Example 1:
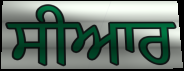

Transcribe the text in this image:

ਸੀਆਰ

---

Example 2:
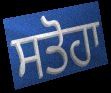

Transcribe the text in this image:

ਸਤੋਹਾ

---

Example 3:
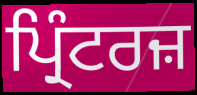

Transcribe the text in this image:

ਪ੍ਰਿੰਟਰਜ਼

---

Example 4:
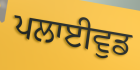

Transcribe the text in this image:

ਪਲਾਈਵੁਡ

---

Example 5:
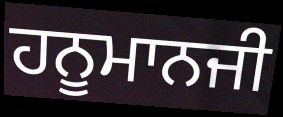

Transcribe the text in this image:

ਹਨੂਮਾਨਜੀ